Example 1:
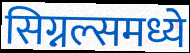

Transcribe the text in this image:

सिग्नल्समध्ये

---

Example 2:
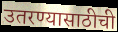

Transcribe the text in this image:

उतरण्यासाठीची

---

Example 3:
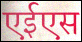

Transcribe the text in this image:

एईएस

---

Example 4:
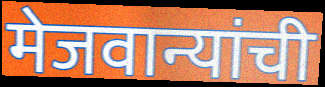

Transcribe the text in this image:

मेजवान्यांची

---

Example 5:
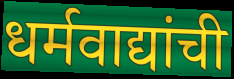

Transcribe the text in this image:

धर्मवाद्यांची